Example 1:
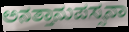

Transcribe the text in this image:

ಅನತ್ತಾನುಪಸ್ಸನಾ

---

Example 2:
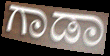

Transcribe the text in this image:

ಗಾಡಾ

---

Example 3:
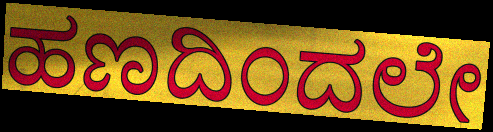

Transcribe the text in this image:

ಹಣದಿಂದಲೇ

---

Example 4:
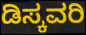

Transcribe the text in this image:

ಡಿಸ್ಕವರಿ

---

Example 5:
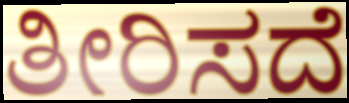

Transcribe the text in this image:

ತೀರಿಸದೆ